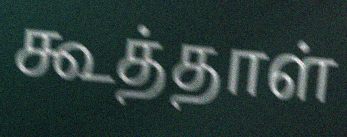
கூத்தாள்